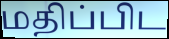
மதிப்பிட